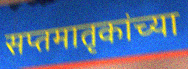
सप्तमातृकांच्या